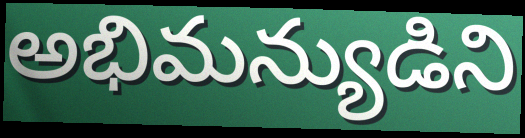
అభిమన్యుడిని